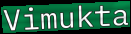
Vimukta